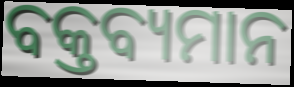
ବକ୍ତବ୍ୟମାନ